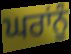
ਘਰਾਂਨੂੰ